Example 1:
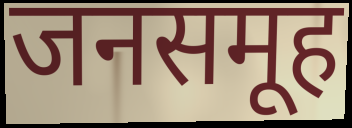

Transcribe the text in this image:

जनसमूह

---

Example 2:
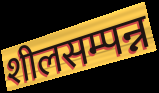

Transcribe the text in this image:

शीलसम्पन्न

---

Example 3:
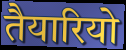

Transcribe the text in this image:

तैयारियो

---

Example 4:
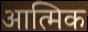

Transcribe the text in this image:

आत्मिक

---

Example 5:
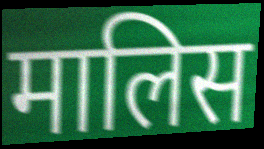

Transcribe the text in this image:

मालिस